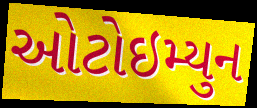
ઓટોઇમ્યુન